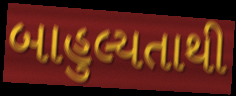
બાહુલ્યતાથી